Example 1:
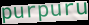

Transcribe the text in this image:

purpuru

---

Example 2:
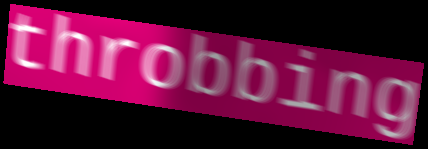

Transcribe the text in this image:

throbbing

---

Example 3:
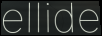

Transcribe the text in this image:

ellide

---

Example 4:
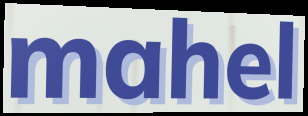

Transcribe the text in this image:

mahel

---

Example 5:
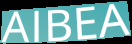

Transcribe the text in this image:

AIBEA